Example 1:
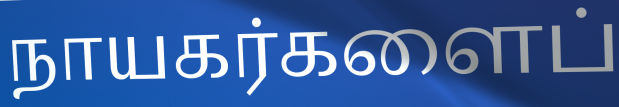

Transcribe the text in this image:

நாயகர்களைப்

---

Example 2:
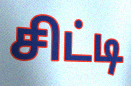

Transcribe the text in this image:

சிட்டி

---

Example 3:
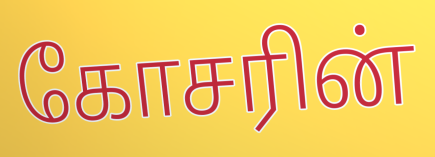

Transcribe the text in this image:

கோசரின்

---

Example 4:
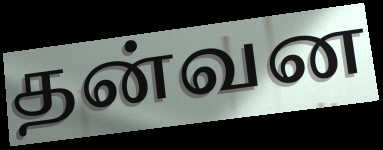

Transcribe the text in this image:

தன்வன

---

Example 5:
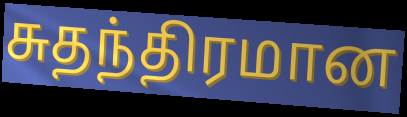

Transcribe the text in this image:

சுதந்திரமான